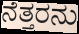
ನೆತ್ತರನು